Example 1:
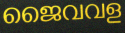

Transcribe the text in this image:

ജൈവവള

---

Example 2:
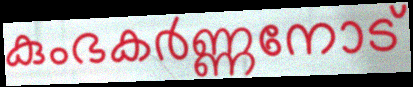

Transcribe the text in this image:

കുംഭകർണ്ണനോട്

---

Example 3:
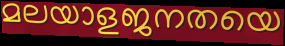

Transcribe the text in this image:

മലയാളജനതയെ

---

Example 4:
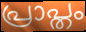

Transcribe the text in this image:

പ്രാപ്തം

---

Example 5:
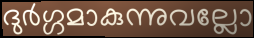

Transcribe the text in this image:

ദുർഗ്ഗമാകുന്നുവല്ലോ